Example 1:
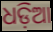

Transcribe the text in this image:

ଧଡ଼ିଆ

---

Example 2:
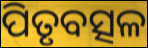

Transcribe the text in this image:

ପିତୃବତ୍ସଳ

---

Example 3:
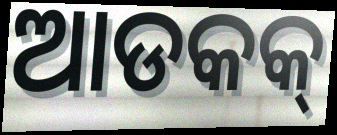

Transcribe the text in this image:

ଆଡକକ୍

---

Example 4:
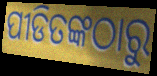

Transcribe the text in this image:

ପୀଡିତଙ୍କଠାରୁ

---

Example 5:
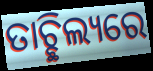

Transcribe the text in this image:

ତାଚ୍ଛିଲ୍ୟରେ